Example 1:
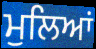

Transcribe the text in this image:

ਮੁਲਿਆਂ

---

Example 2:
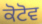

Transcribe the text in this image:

ਕੋਟੋਵ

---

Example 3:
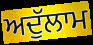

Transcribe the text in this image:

ਅਦੁੱਲਾਮ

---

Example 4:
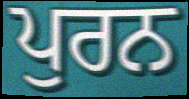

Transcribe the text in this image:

ਪੁਰਨ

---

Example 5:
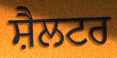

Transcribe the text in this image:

ਸ਼ੈਲਟਰ